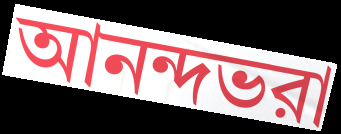
আনন্দভরা